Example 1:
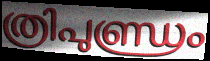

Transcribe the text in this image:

ത്രിപുണ്ഡ്രം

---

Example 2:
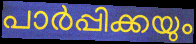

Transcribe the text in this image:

പാർപ്പിക്കയും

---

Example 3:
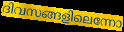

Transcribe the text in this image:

ദിവസങ്ങളിലെന്നോ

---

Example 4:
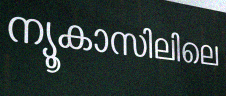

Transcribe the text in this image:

ന്യൂകാസിലിലെ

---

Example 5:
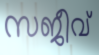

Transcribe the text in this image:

സജീവ്